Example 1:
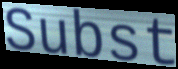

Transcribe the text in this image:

Subst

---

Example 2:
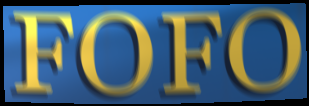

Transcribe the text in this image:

FOFO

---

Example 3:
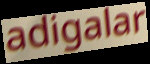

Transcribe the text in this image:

adigalar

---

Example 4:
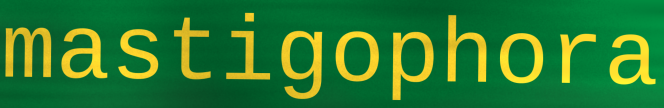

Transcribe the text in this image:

mastigophora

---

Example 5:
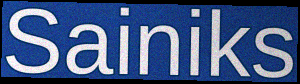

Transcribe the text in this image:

Sainiks